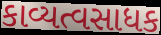
કાવ્યત્વસાધક